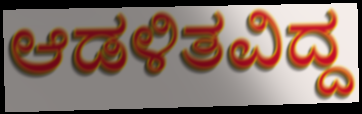
ಆಡಳಿತವಿದ್ದ